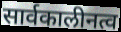
सार्वकालीनत्व